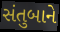
સંતુબાને